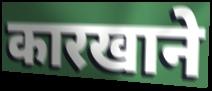
कारखाने